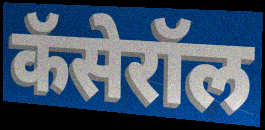
कॅसेरॉल